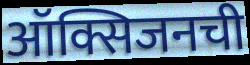
ऑक्सिजनची